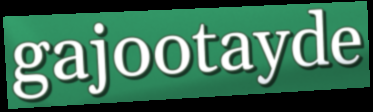
gajootayde